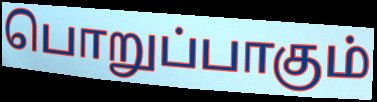
பொறுப்பாகும்